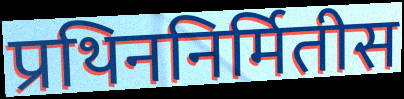
प्रथिननिर्मितीस